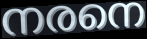
നരനെ